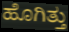
ಹೊಗಿತ್ತು